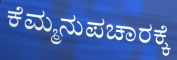
ಕೆಮ್ಮನುಪಚಾರಕ್ಕೆ